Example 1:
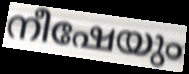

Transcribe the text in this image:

നീഷേയും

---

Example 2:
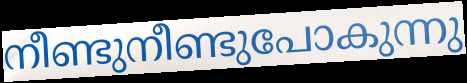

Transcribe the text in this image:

നീണ്ടുനീണ്ടുപോകുന്നു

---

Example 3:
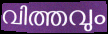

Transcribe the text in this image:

വിത്തവും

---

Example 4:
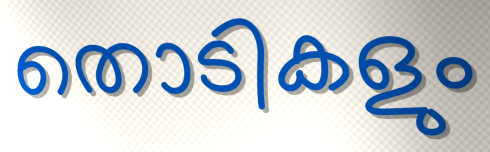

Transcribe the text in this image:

തൊടികളും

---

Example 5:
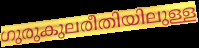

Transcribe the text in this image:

ഗുരുകുലരീതിയിലുള്ള